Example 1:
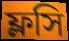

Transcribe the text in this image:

ফ্লসি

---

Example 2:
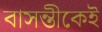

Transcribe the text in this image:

বাসন্তীকেই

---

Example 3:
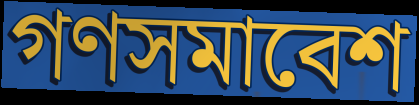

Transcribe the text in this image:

গণসমাবেশ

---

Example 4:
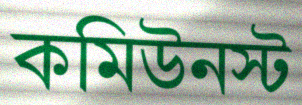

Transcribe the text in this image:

কমিউনস্ট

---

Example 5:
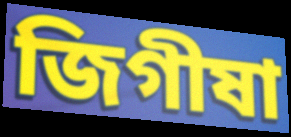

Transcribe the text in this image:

জিগীষা